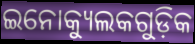
ଇନୋକ୍ଯୁଲକଗୁଡ଼ିକ